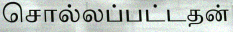
சொல்லப்பட்டதன்